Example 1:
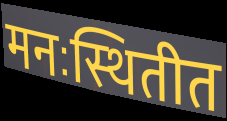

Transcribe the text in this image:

मनःस्थितीत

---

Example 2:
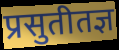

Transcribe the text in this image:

प्रसुतीतज्ञ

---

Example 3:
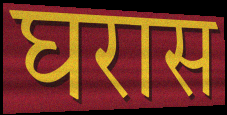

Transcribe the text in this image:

घरास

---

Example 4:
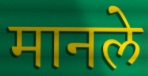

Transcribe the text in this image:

मानले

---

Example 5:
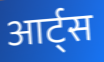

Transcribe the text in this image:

आर्ट्स